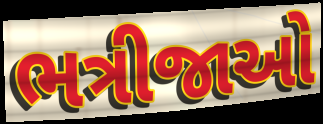
ભત્રીજાઓ